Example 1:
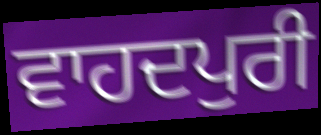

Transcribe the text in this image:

ਵਾਹਦਪੁਰੀ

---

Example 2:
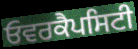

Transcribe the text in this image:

ਓਵਰਕੈਪਸਿਟੀ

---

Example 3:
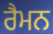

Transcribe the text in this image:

ਰੈਮਨ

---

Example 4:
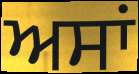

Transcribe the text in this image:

ਅਸਾਂ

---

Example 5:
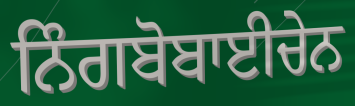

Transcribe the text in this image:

ਨਿੰਗਬੋਬਾਈਚੇਨ